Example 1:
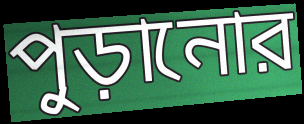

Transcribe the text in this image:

পুড়ানোর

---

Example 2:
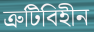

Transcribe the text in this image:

ত্রুটিবিহীন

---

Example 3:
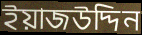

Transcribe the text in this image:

ইয়াজউদ্দিন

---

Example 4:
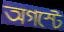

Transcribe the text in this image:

অগস্টে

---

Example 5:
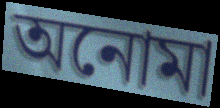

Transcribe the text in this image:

অনোমা